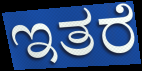
ಇತರೆ